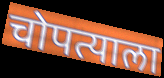
चोपत्याला